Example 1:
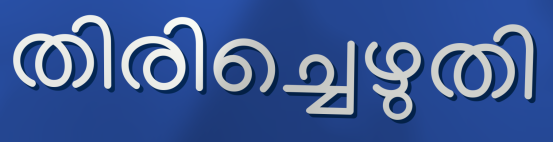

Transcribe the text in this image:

തിരിച്ചെഴുതി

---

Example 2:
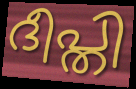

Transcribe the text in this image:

ദീപ്തി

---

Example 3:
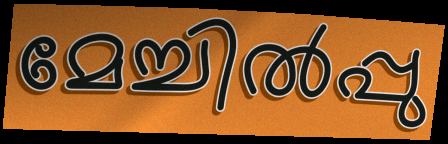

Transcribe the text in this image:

മേച്ചിൽപ്പു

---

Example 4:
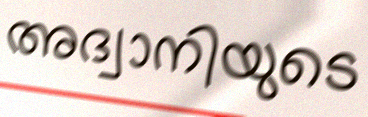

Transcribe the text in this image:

അദ്വാനിയുടെ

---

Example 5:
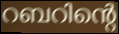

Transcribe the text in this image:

റബറിന്റെ